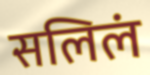
सलिलं